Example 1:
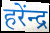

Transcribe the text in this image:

हरेंन्द्र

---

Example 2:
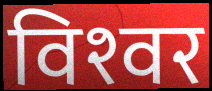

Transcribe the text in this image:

विश्वर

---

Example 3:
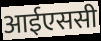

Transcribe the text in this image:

आईएससी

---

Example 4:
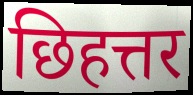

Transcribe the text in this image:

छिहत्तर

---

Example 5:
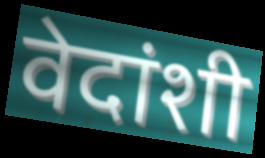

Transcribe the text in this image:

वेदांशी